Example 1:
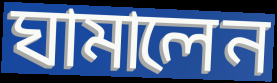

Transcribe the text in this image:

ঘামালেন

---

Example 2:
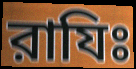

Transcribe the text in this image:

রাযিঃ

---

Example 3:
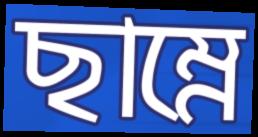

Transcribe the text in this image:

ছাম্নে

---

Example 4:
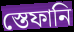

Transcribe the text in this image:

স্তেফানি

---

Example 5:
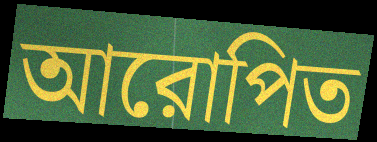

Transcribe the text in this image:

আরোপিত